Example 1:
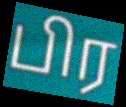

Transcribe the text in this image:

பிர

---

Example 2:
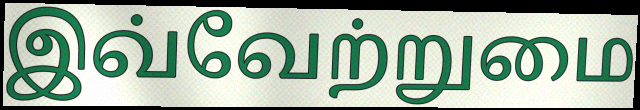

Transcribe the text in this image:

இவ்வேற்றுமை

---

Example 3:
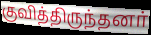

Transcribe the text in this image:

குவித்திருந்தனர்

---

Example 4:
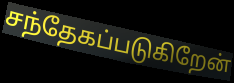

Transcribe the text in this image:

சந்தேகப்படுகிறேன்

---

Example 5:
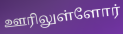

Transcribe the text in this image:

ஊரிலுள்ளோர்